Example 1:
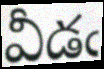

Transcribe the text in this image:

వీడఁ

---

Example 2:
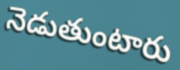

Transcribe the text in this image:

నెడుతుంటారు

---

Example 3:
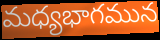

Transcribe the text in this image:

మధ్యభాగమున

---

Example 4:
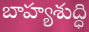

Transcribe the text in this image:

బాహ్యశుద్ధి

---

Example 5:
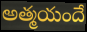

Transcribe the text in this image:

అత్మయందే